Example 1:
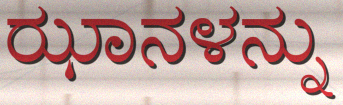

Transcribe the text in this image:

ಝಾನಳನ್ನು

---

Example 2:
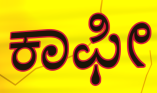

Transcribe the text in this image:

ಕಾಫೀ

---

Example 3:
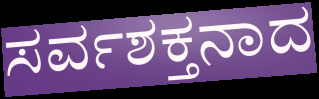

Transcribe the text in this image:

ಸರ್ವಶಕ್ತನಾದ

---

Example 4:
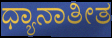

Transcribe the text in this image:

ಧ್ಯಾನಾತೀತ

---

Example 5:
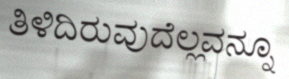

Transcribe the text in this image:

ತಿಳಿದಿರುವುದೆಲ್ಲವನ್ನೂ